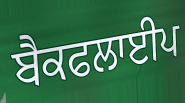
ਬੈਕਫਲਾਈਪ